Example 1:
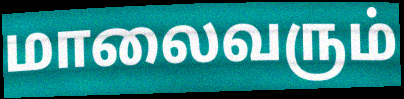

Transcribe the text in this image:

மாலைவரும்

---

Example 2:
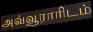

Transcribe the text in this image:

அவ்வூராரிடம்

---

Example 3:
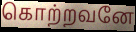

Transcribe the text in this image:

கொற்றவனே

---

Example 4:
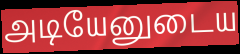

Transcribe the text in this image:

அடியேனுடைய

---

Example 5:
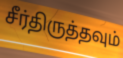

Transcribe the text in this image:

சீர்திருத்தவும்